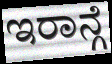
ಇರಾನ್ಗೆ